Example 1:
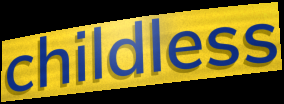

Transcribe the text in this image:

childless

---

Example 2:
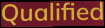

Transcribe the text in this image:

Qualified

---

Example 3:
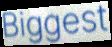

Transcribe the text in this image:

Biggest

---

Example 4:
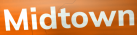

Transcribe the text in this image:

Midtown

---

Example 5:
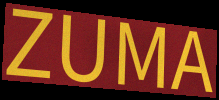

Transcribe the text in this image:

ZUMA